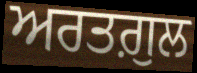
ਅਰਤਗ਼ੁਲ